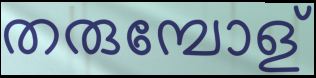
തരുമ്പോള്